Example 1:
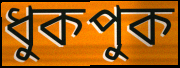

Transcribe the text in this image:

ধুকপুক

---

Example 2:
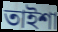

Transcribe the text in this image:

তাইশা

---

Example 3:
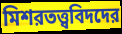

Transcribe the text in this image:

মিশরতত্ত্ববিদদের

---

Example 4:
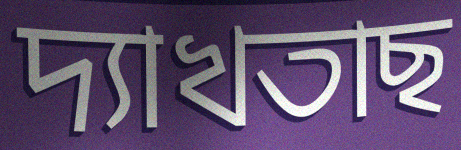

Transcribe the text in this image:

দ্যাখতাছ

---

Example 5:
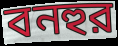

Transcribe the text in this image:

বনহুর